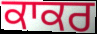
ਕਾਕਰ